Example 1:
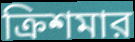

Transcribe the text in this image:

ক্রিশমার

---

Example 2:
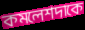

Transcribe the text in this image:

কমলেশদাকে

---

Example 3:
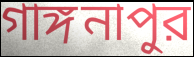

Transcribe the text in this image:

গাঙ্গনাপুর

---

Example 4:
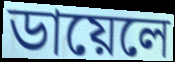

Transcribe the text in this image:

ডায়েলে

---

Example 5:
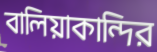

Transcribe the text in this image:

বালিয়াকান্দির